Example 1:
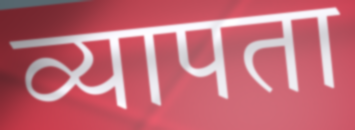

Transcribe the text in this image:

व्यापता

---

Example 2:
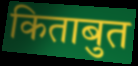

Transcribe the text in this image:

किताबुत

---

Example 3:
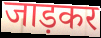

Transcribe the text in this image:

जाड़कर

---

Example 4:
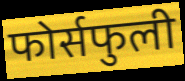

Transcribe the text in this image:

फोर्सफुली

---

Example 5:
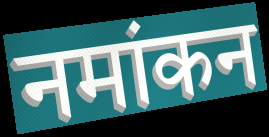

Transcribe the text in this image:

नमांकन